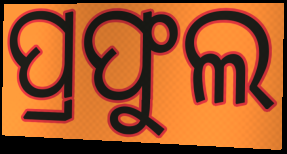
ପ୍ରଫୁଲ